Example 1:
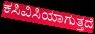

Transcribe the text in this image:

ಕಸಿವಿಸಿಯಾಗುತ್ತದೆ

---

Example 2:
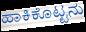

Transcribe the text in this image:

ಹಾಕಿಕೊಟ್ಟನು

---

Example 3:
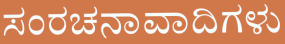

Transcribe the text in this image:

ಸಂರಚನಾವಾದಿಗಳು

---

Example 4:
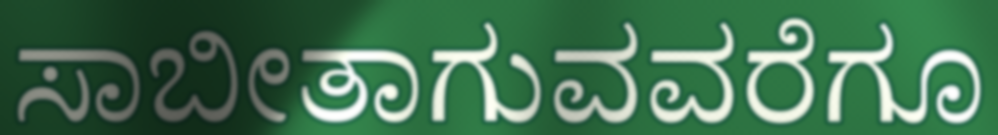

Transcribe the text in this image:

ಸಾಬೀತಾಗುವವರೆಗೂ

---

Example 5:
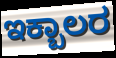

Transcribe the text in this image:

ಇಕ್ಬಾಲರ